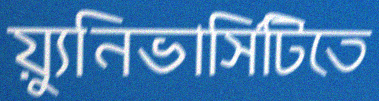
য়্যুনিভার্সিটিতে